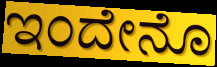
ಇಂದೇನೊ